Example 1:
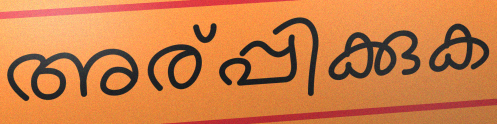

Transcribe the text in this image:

അര്പ്പിക്കുക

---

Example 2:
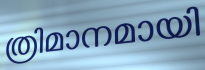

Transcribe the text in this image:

ത്രിമാനമായി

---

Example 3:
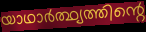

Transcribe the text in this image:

യാഥാർത്ഥ്യത്തിന്റെ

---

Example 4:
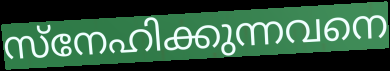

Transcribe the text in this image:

സ്നേഹിക്കുന്നവനെ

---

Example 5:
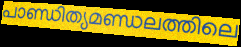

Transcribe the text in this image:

പാണ്ഡിത്യമണ്ഡലത്തിലെ